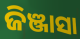
ଜିଞ୍ଜାସା